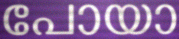
പോയാ